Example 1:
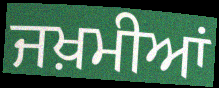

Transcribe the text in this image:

ਜਖ਼ਮੀਆਂ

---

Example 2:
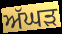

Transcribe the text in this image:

ਅੱਘੜ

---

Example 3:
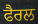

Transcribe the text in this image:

ਫੈਰਲ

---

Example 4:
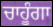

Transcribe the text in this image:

ਚਾਹੂੰਗਾ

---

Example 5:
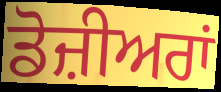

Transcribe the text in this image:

ਡੋਜ਼ੀਅਰਾਂ